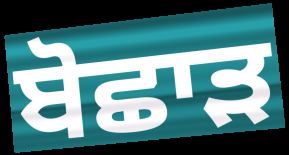
ਬੋਛਾੜ